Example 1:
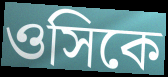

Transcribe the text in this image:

ওসিকে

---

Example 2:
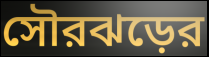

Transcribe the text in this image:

সৌরঝড়ের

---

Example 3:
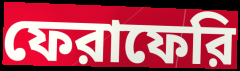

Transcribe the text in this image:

ফেরাফেরি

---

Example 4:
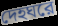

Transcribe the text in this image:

দেহঘরে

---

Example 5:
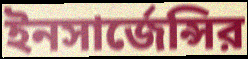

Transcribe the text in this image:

ইনসার্জেন্সির